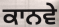
ਕਾਨਵੇ